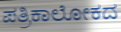
ಪತ್ರಿಕಾಲೋಕದ